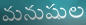
మనుషుల